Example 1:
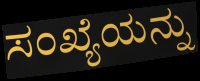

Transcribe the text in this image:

ಸಂಖ್ಯೆಯನ್ನು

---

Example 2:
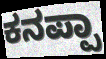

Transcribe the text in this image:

ಕನಪ್ಪಾ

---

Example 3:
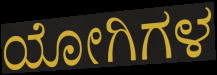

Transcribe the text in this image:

ಯೋಗಿಗಳ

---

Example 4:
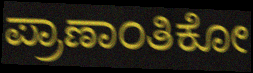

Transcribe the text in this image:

ಪ್ರಾಣಾಂತಿಕೋ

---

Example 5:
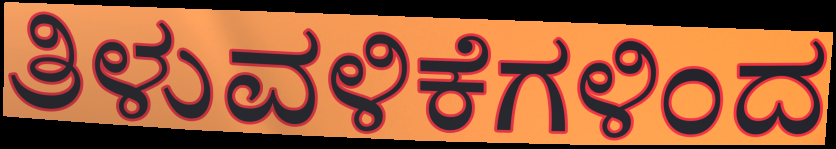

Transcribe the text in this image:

ತಿಳುವಳಿಕೆಗಳಿಂದ